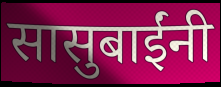
सासुबाईंनी